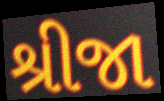
શ્રીજા